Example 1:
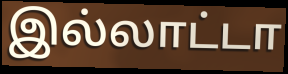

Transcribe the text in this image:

இல்லாட்டா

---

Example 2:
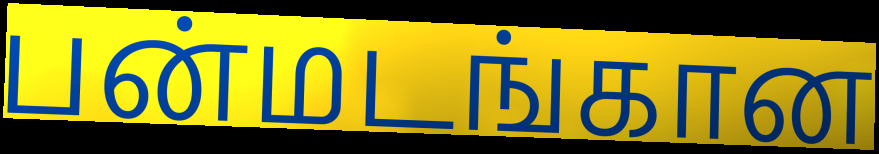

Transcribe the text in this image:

பன்மடங்கான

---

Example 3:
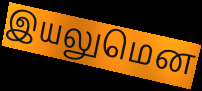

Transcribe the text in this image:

இயலுமென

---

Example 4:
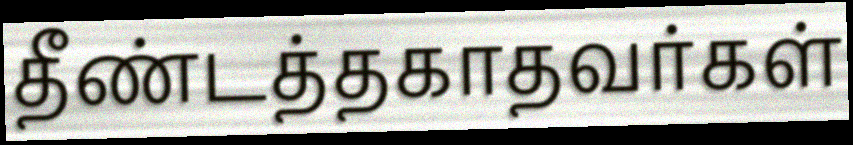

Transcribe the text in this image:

தீண்டத்தகாதவர்கள்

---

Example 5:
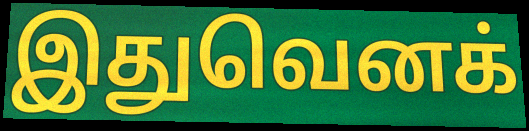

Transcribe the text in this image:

இதுவெனக்